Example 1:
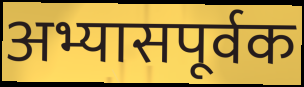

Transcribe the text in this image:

अभ्यासपूर्वक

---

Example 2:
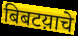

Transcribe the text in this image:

बिबटय़ाचे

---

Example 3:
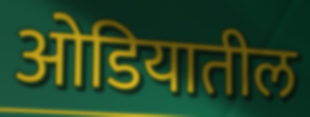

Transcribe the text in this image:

ओडियातील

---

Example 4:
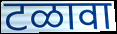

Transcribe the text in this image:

टळावा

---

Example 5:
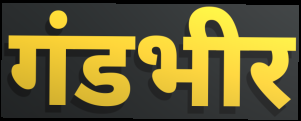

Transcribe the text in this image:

गंडभीर